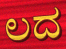
ಲದ